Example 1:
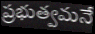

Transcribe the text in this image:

ప్రభుత్వమనే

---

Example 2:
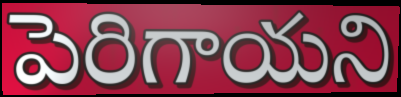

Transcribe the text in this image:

పెరిగాయని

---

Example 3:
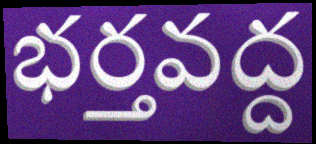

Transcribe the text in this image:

భర్తవద్ద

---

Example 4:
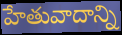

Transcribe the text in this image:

హేతువాదాన్ని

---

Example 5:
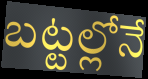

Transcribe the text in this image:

బట్టల్లోనే